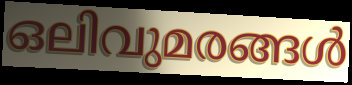
ഒലിവുമരങ്ങൾ